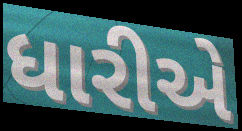
ધારીએ